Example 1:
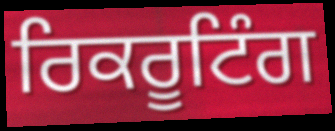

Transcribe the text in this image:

ਰਿਕਰੂਟਿੰਗ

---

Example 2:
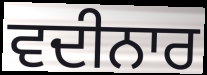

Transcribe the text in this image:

ਵਦੀਨਾਰ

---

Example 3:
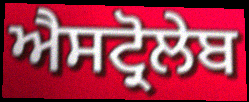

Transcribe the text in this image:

ਐਸਟ੍ਰੋਲੇਬ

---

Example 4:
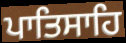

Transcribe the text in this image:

ਪਾਤਿਸਾਹਿ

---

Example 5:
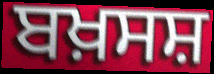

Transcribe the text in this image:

ਬਖ਼ਸਸ਼